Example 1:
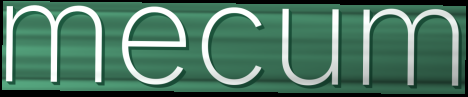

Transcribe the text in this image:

mecum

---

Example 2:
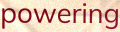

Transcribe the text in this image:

powering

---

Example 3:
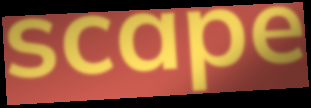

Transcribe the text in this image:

scape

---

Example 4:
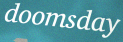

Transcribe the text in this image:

doomsday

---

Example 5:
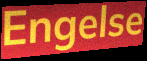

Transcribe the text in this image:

Engelse